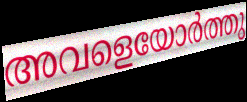
അവളെയോർത്തു